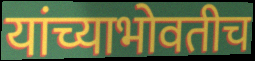
यांच्याभोवतीच